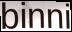
binni